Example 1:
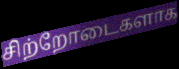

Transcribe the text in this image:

சிற்றோடைகளாக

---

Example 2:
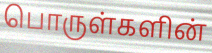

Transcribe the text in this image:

பொருள்களின்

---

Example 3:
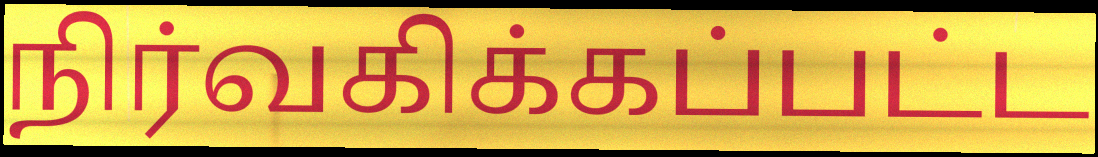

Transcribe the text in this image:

நிர்வகிக்கப்பட்ட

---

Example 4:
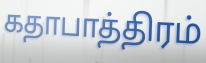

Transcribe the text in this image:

கதாபாத்திரம்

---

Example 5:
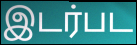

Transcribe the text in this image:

இடர்பட